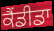
ਕੈਂਡੀਡਾ